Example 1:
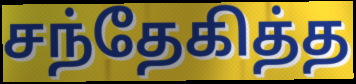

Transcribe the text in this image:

சந்தேகித்த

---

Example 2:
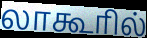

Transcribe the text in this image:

லாகூரில்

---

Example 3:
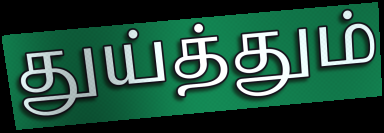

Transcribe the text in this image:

துய்த்தும்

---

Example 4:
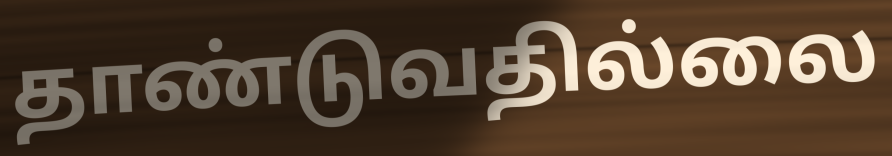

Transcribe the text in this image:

தாண்டுவதில்லை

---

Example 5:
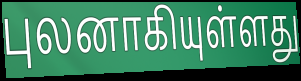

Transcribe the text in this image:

புலனாகியுள்ளது